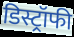
डिस्ट्रॉफी